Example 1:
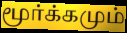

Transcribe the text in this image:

மூர்க்கமும்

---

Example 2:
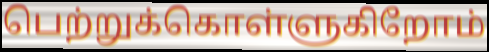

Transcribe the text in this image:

பெற்றுக்கொள்ளுகிறோம்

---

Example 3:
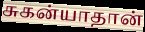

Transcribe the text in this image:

சுகன்யாதான்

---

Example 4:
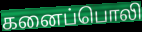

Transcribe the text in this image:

கனைப்பொலி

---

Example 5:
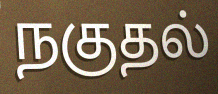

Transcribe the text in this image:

நகுதல்